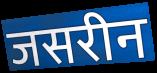
जसरीन